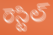
రెస్టిల్